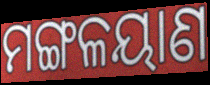
ମଙ୍ଗଳୟାଣ